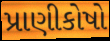
પ્રાણીકોષો